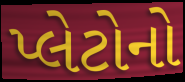
પ્લેટોનો